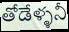
తోడేళ్ళనీ